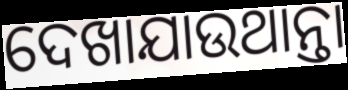
ଦେଖାଯାଉଥାନ୍ତା